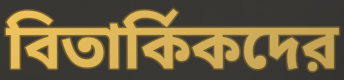
বিতার্কিকদের